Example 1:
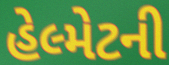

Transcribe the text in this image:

હેલ્મેટની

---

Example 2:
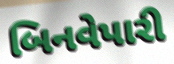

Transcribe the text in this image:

બિનવેપારી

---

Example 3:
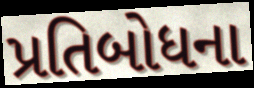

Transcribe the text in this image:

પ્રતિબોધના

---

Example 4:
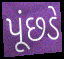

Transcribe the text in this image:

પૂંછડે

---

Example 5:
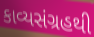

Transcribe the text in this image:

કાવ્યસંગ્રહથી